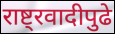
राष्ट्रवादीपुढे